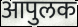
आपुलक